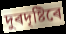
দুৰদৃষ্টিৰে